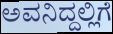
ಅವನಿದ್ದಲ್ಲಿಗೆ